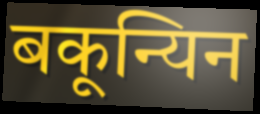
बकून्यिन